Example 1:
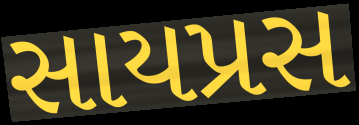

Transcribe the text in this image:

સાયપ્રસ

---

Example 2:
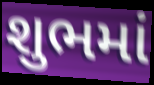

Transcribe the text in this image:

શુભમાં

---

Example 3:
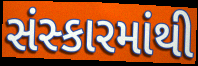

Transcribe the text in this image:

સંસ્કારમાંથી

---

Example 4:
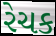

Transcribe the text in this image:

રેચક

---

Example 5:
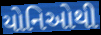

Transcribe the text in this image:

યોનિઓથી